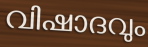
വിഷാദവും